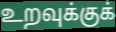
உறவுக்குக்